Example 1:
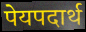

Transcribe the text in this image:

पेयपदार्थ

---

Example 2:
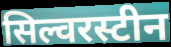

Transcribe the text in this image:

सिल्वरस्टीन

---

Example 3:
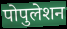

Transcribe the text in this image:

पोपुलेशन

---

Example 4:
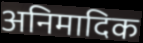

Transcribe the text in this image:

अनिमादिक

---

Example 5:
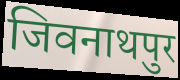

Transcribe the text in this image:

जिवनाथपुर